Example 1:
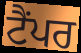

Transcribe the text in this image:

ਟੈਂਪਰ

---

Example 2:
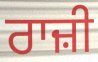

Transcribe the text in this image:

ਰਾਜ਼ੀ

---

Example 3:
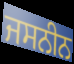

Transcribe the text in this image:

ਜਸਨੀਨ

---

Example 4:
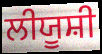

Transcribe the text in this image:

ਲੀਯੂਸ਼ੀ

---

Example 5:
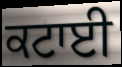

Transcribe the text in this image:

ਕਟਾਈ